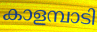
കാളമ്പാടി